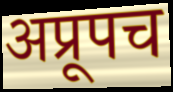
अप्रूपच